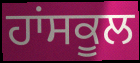
ਹਾਂਸਕੂਲ